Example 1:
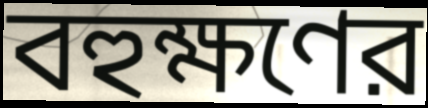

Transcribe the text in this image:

বহুক্ষণের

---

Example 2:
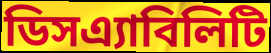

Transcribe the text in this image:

ডিসএ্যাবিলিটি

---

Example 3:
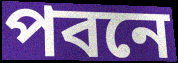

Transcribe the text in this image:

পবনে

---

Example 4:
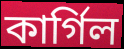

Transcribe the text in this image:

কার্গিল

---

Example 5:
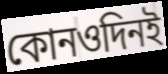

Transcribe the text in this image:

কোনওদিনই